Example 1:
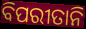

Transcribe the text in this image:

ବିପରୀତାନି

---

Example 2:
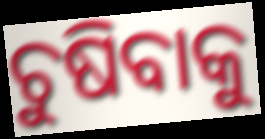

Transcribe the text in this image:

ଚୁଷିବାକୁ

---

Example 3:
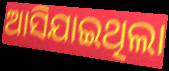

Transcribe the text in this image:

ଆସିଯାଇଥିଲା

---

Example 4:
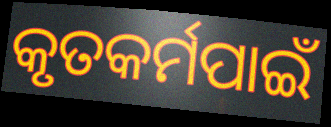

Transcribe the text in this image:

କୃତକର୍ମପାଇଁ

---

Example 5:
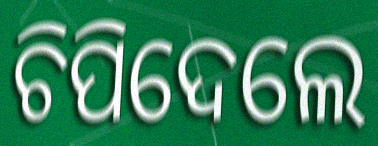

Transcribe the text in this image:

ଚିପିଦେଲେ